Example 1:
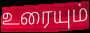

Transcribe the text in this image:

உரையும்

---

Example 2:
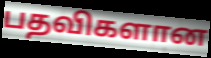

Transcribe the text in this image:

பதவிகளான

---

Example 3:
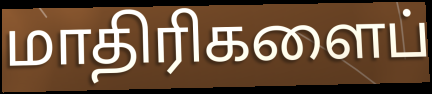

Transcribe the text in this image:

மாதிரிகளைப்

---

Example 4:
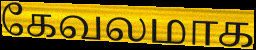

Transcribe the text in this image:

கேவலமாக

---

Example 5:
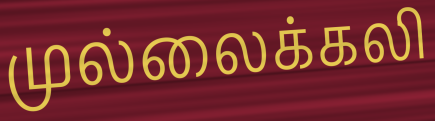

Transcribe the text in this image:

முல்லைக்கலி